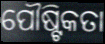
ପୌଷ୍ଟିକତା